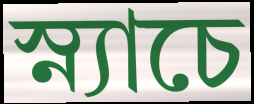
স্ন্যাচে